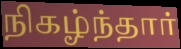
நிகழ்ந்தார்